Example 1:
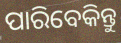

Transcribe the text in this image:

ପାରିବେକିନ୍ତୁ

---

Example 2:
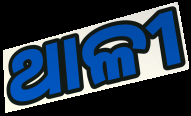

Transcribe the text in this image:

ଥାଳୀ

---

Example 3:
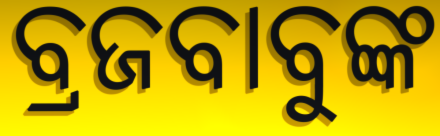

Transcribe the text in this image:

ବ୍ରଜବାବୁଙ୍କ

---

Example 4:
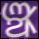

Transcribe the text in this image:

ଞ୍ଝ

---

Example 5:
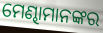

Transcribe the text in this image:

ମେଣ୍ଢାମାନଙ୍କର